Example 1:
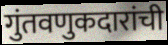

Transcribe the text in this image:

गुंतवणुकदारांची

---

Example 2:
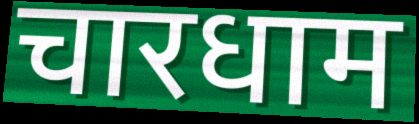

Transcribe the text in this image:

चारधाम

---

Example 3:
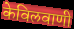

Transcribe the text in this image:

केविलवाणी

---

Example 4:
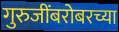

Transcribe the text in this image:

गुरुजींबरोबरच्या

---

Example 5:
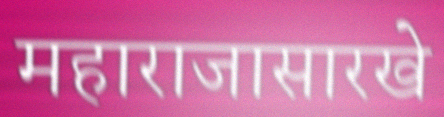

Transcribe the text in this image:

महाराजासारखे